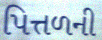
પિત્તળની